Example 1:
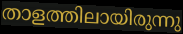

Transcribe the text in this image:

താളത്തിലായിരുന്നു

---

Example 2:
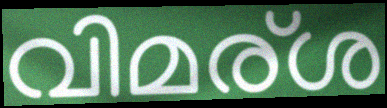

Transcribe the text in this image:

വിമര്ശ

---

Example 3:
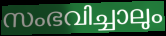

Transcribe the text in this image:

സംഭവിച്ചാലും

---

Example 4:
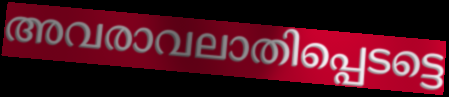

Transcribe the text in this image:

അവരാവലാതിപ്പെടട്ടെ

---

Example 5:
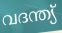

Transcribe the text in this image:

വദന്ത്യ്